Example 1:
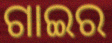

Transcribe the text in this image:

ଗାଇର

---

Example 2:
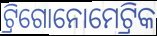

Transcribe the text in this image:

ଟ୍ରିଗୋନୋମେଟ୍ରିକ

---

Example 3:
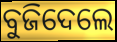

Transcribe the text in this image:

ବୁଜିଦେଲେ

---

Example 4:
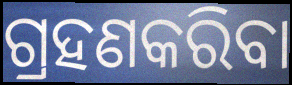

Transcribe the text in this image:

ଗ୍ରହଣକରିବା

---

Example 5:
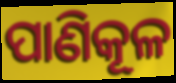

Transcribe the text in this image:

ପାଣିକୂଳ